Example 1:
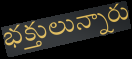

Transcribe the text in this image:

భక్తులున్నారు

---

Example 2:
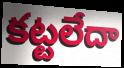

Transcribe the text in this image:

కట్టలేదా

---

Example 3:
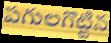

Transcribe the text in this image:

పగులగొట్టిన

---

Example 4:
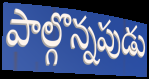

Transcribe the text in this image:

పాల్గొన్నపుడు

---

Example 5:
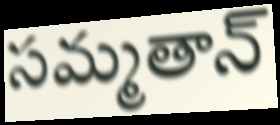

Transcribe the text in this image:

సమ్మతాన్